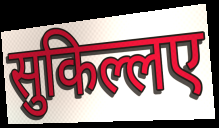
सुकिल्लए